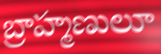
బ్రాహ్మణులూ